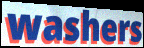
washers